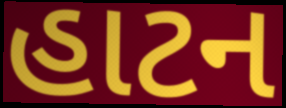
હાટન